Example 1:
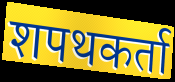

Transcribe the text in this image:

शपथकर्ता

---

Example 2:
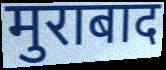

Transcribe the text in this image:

मुराबाद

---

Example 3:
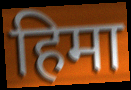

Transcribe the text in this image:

हिमा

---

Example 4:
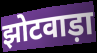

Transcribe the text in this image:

झोटवाड़ा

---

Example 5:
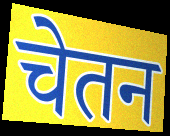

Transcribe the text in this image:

चेतन